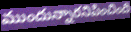
ముందున్నారనిపించింది